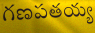
గణపతయ్య